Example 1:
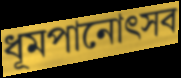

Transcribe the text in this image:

ধূমপানোৎসব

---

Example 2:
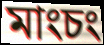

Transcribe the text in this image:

মাংচং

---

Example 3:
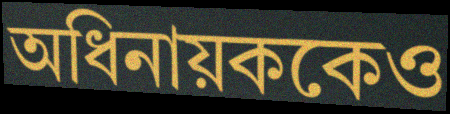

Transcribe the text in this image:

অধিনায়ককেও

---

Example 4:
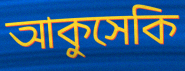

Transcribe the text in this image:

আকুসেকি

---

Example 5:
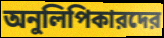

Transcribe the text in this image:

অনুলিপিকারদের